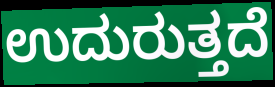
ಉದುರುತ್ತದೆ